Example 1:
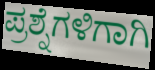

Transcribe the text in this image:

ಪ್ರಶ್ನೆಗಳಿಗಾಗಿ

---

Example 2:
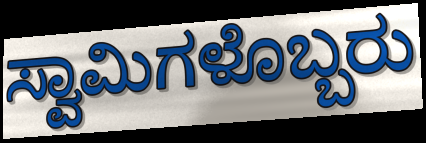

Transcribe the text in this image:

ಸ್ವಾಮಿಗಳೊಬ್ಬರು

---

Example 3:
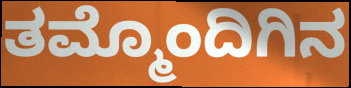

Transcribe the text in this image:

ತಮ್ಮೊಂದಿಗಿನ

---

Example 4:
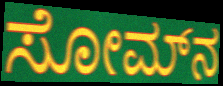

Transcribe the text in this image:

ಸೋಮ್‍ನ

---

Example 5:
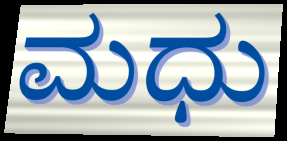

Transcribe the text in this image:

ಮಧು